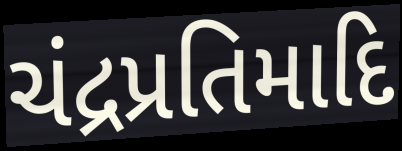
ચંદ્રપ્રતિમાદિ